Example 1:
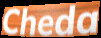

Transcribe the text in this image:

Cheda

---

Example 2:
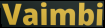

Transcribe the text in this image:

Vaimbi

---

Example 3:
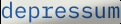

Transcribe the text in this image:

depressum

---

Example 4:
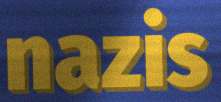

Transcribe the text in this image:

nazis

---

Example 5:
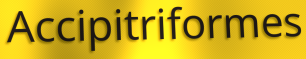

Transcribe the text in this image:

Accipitriformes